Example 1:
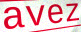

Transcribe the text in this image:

avez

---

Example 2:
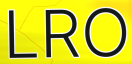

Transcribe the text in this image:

LRO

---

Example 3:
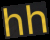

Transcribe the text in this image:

hh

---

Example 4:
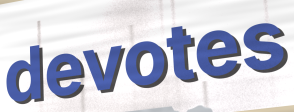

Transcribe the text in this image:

devotes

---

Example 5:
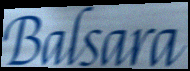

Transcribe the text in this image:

Balsara